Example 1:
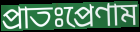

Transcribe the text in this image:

প্রাতঃপ্রেণাম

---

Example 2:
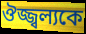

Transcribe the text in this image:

ঔজ্জ্বল্যকে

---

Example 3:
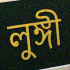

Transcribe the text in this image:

লুঙ্গী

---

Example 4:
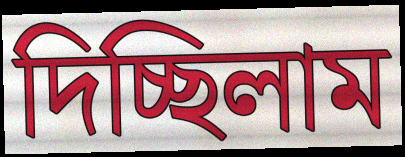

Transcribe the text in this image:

দিচ্ছিলাম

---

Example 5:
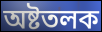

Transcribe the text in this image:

অষ্টতলক